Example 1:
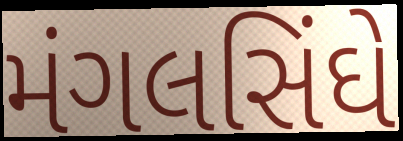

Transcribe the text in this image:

મંગલસિંઘે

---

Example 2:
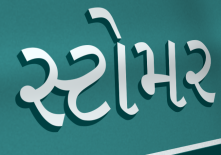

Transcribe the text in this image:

સ્ટોમર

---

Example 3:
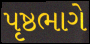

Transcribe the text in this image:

પૃષ્ઠભાગે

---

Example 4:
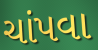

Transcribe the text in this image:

ચાંપવા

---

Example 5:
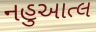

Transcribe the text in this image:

નહુઆત્લ